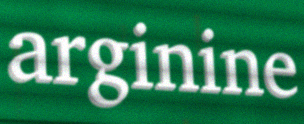
arginine